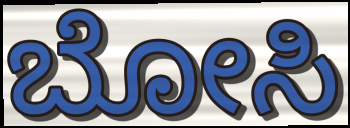
ಬೋಸಿ